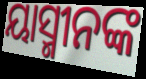
ୟାସ୍ମୀନଙ୍କ